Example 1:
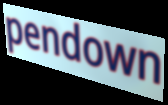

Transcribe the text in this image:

pendown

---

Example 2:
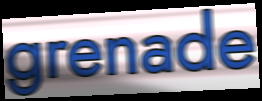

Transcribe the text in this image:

grenade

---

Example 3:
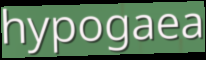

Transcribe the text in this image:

hypogaea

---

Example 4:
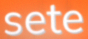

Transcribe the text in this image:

sete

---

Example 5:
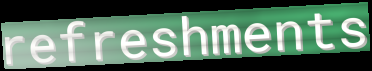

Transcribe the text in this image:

refreshments